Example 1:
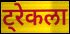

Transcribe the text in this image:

ट्रेकला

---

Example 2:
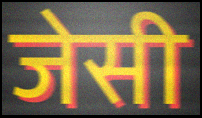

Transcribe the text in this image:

जेसी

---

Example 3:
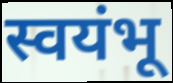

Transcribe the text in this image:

स्वयंभू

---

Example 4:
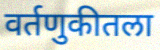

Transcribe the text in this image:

वर्तणुकीतला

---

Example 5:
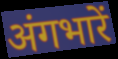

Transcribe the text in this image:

अंगभारें